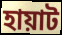
হায়াট